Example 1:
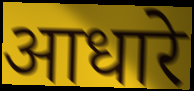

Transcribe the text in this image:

आधारे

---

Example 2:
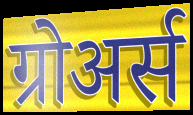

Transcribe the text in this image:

ग्रोअर्स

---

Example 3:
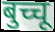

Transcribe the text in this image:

बुच्चू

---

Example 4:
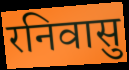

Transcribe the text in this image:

रनिवासु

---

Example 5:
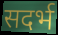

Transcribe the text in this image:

सदर्भ